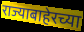
राज्याबाहेरच्या